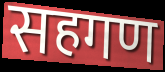
सहगण